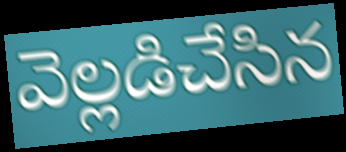
వెల్లడిచేసిన